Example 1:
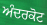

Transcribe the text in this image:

ਅੰਦਰਕੋਟ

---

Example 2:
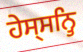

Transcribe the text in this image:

ਹੇਸ੍ਸਨ੍ਤਿ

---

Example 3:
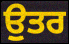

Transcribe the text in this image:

ਉੁਤਰ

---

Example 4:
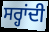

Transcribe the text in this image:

ਸਰ੍ਹਾਂਦੀ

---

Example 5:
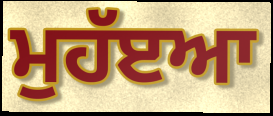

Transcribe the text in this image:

ਮੁਹੱੲਆ